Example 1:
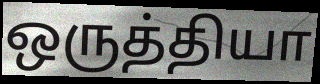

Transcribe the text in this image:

ஒருத்தியா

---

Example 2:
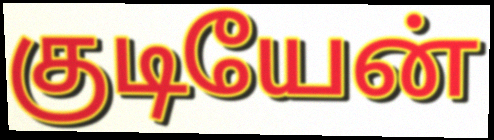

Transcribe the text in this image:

குடியேன்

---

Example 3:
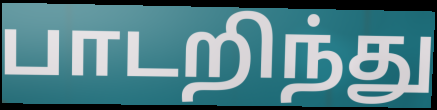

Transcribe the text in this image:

பாடறிந்து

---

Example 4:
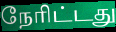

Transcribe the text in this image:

நேரிட்டது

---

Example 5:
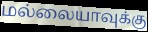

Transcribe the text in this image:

மல்லையாவுக்கு